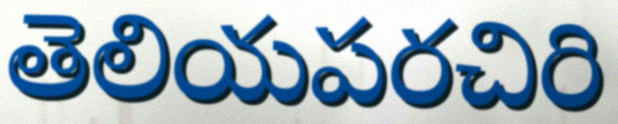
తెలియపరచిరి